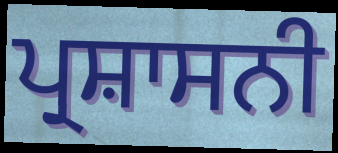
ਪ੍ਰਸ਼ਾਸਨੀ